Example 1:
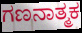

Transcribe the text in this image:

ಗಣನಾತ್ಮಕ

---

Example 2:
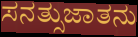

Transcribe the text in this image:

ಸನತ್ಸುಜಾತನು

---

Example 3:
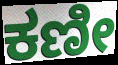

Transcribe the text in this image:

ಕಣೀ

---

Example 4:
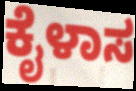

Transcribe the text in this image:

ಕೈಳಾಸ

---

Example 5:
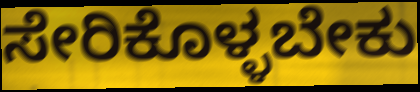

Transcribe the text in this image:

ಸೇರಿಕೊಳ್ಳಬೇಕು